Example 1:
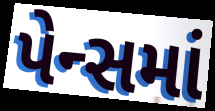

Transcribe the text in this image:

પેન્સમાં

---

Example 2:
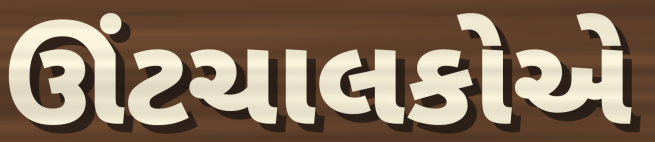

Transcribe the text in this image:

ઊંટચાલકોએ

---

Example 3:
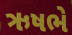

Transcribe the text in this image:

ઋષભે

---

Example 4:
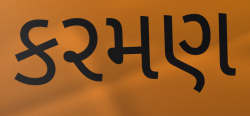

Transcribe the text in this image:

કરમણ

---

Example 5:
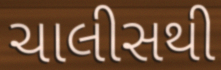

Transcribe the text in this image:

ચાલીસથી